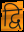
द्वि